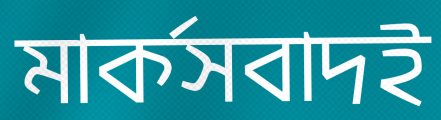
মার্কসবাদই